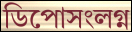
ডিপোসংলগ্ন